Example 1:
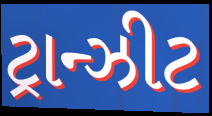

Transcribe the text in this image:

ટ્રાન્ઝીટ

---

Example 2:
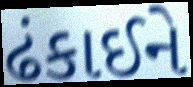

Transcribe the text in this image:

ઢંકાઈને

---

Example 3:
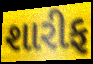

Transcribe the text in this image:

શારીફ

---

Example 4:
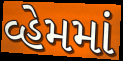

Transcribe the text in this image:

વ્હેમમાં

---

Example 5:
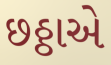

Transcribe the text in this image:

છઠ્ઠાએ